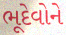
ભૂદેવોને